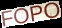
FOPO